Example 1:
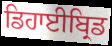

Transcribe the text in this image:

ਡਿਹਾਈਬ੍ਰਿਡ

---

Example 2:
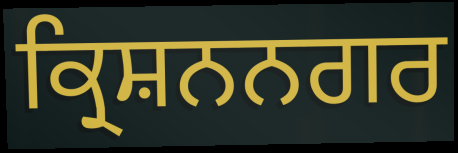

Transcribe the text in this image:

ਕ੍ਰਿਸ਼ਨਨਗਰ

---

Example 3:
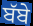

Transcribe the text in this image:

ਬੱਬੇ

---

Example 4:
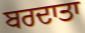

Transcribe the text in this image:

ਬਰਦਾਤਾ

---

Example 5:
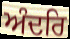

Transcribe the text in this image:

ਅੰਦਰਿ